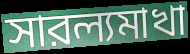
সারল্যমাখা